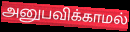
அனுபவிக்காமல்